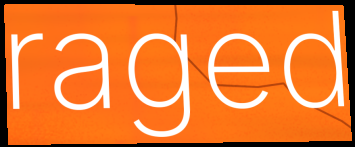
raged